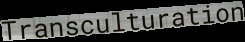
Transculturation